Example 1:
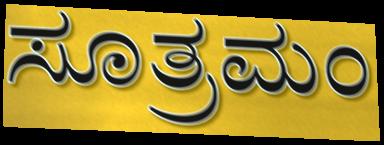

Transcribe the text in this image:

ಸೂತ್ರಮಂ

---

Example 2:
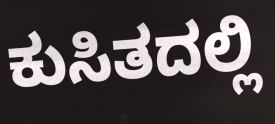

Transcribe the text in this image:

ಕುಸಿತದಲ್ಲಿ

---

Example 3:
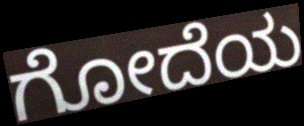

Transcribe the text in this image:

ಗೋದೆಯ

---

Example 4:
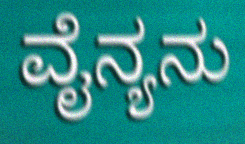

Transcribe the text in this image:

ವೈನ್ಯನು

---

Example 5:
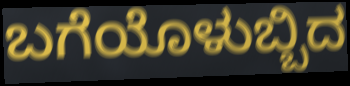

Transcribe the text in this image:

ಬಗೆಯೊಳುಬ್ಬಿದ